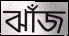
ঝাঁজ